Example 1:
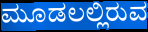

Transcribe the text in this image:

ಮೂಡಲಲ್ಲಿರುವ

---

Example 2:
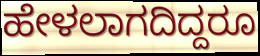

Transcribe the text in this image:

ಹೇಳಲಾಗದಿದ್ದರೂ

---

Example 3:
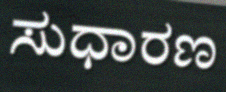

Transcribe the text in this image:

ಸುಧಾರಣ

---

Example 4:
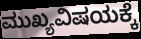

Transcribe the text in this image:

ಮುಖ್ಯವಿಷಯಕ್ಕೆ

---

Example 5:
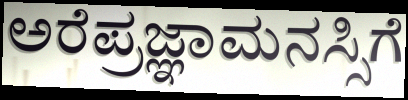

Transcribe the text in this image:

ಅರೆಪ್ರಜ್ಞಾಮನಸ್ಸಿಗೆ